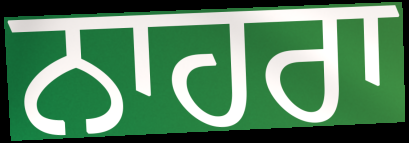
ਨਾਹਰਾ